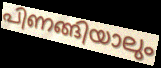
പിണങ്ങിയാലും